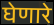
घेणारे